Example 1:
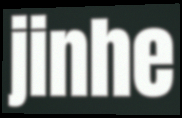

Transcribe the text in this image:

jinhe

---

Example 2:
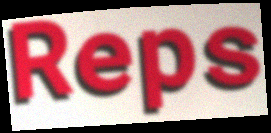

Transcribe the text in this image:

Reps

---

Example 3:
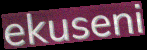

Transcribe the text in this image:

ekuseni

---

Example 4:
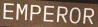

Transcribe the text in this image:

EMPEROR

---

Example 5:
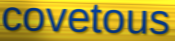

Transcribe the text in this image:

covetous